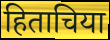
हिताचिया